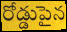
రోడ్డుపైన